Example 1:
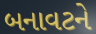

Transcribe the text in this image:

બનાવટને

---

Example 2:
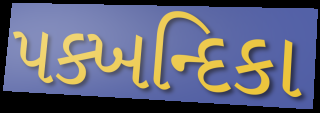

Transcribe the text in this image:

પક્ખન્દિકા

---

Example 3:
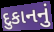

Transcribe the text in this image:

દુકાનનું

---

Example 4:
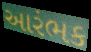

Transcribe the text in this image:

આરંભક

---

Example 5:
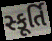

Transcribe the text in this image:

સ્કૂર્તિ